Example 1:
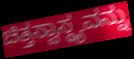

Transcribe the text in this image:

ಚಿತ್ತಸ್ವಾಸ್ಥ್ಯವನ್ನು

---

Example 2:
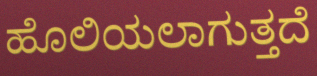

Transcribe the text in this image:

ಹೊಲಿಯಲಾಗುತ್ತದೆ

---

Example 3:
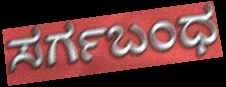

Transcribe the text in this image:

ಸರ್ಗಬಂಧ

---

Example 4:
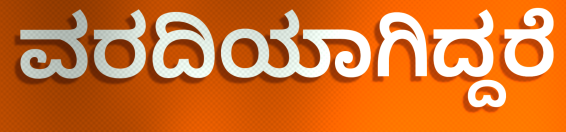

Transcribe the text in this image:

ವರದಿಯಾಗಿದ್ದರೆ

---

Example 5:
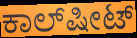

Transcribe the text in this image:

ಕಾಲ್‌ಷೀಟ್